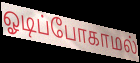
ஓடிப்போகாமல்